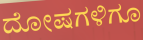
ದೋಷಗಳಿಗೂ